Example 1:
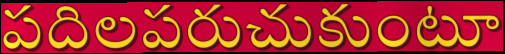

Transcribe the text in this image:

పదిలపరుచుకుంటూ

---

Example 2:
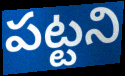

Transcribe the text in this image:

పట్టని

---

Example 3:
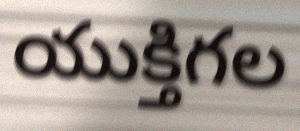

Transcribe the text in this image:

యుక్తిగల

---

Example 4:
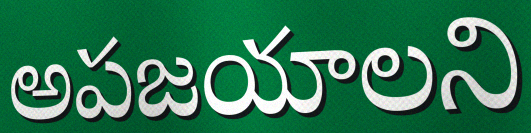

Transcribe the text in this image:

అపజయాలని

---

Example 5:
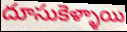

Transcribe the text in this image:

దూసుకెళ్ళాయి